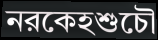
নরকেহশুচৌ